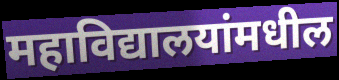
महाविद्यालयांमधील